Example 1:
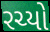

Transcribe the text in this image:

રચ્યો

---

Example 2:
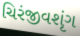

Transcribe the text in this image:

ચિરંજીવશૃંગ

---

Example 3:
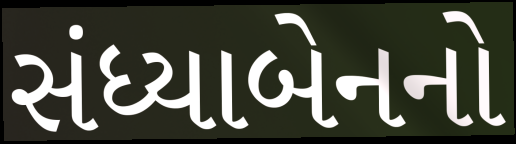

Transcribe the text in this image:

સંધ્યાબેનનો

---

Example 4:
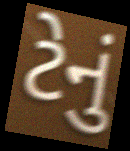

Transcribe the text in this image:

ટેનું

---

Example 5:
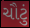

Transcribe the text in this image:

ચૌટું